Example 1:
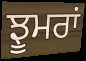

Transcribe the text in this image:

ਝੂਮਰਾਂ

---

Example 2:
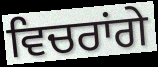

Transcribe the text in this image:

ਵਿਚਰਾਂਗੇ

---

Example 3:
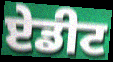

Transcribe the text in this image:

ਏਡੀਟ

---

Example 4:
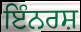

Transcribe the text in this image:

ਇੰਨਰਸ਼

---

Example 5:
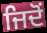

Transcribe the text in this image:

ਜਿਦੋਂ